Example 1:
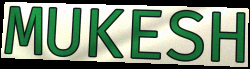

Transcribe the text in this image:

MUKESH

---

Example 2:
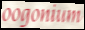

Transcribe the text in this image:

oogonium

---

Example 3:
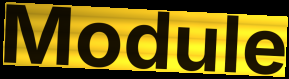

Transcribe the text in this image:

Module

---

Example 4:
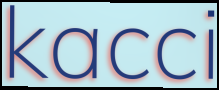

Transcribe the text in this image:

kacci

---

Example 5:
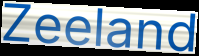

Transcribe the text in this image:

Zeeland